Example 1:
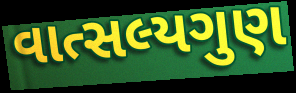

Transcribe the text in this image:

વાત્સલ્યગુણ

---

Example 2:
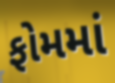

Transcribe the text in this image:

ફોમમાં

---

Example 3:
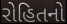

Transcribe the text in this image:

રોહિતનો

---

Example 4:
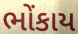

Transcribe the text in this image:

ભોંકાય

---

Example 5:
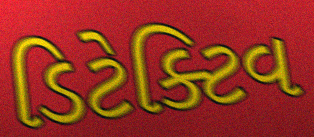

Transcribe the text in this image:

ડિટેક્ટિવ